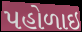
પહોળાઇ